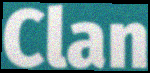
Clan